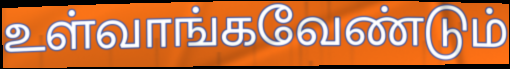
உள்வாங்கவேண்டும்